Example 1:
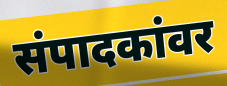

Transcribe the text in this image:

संपादकांवर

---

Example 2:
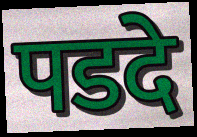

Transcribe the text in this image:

पडदे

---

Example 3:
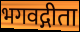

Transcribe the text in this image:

भगवद्गीता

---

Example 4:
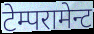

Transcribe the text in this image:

टेम्परामेन्ट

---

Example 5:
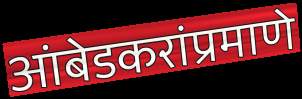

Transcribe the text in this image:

आंबेडकरांप्रमाणे